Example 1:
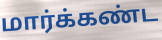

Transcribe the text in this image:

மார்க்கண்ட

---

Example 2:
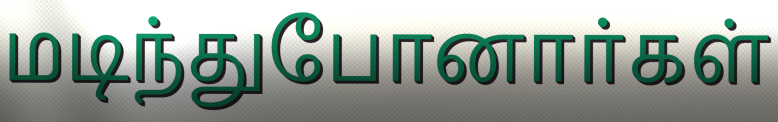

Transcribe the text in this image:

மடிந்துபோனார்கள்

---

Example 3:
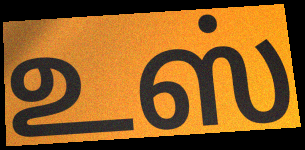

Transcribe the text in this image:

உஸ்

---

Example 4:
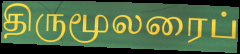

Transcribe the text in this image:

திருமூலரைப்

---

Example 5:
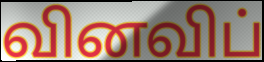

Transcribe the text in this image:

வினவிப்